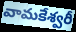
వామకేశ్వరీ